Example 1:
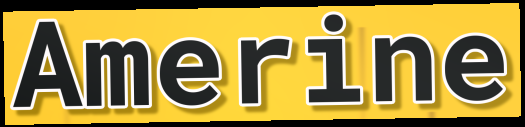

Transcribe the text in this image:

Amerine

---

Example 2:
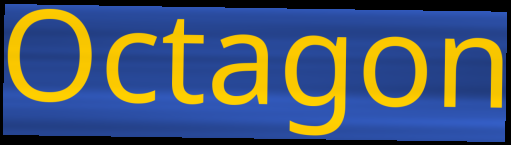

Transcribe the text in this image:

Octagon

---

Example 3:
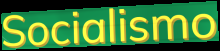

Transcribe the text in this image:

Socialismo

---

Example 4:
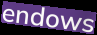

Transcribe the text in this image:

endows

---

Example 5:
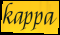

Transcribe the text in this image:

kappa